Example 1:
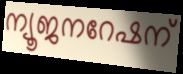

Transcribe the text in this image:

ന്യൂജനറേഷന്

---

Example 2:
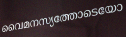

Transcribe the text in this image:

വൈമനസ്യത്തോടെയോ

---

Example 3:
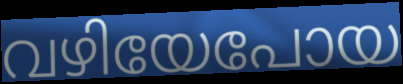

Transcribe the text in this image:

വഴിയേപോയ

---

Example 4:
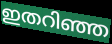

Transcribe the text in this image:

ഇതറിഞ്ഞ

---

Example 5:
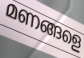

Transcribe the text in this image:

മണങ്ങളെ